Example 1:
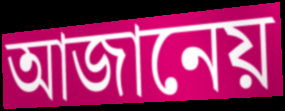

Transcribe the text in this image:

আজানেয়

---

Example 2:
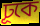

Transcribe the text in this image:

ঢূকে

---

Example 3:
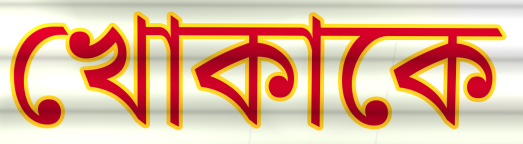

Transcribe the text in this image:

খোকাকে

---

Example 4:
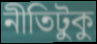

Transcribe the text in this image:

নীতিটুকু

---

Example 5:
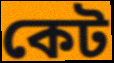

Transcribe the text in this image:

কেট